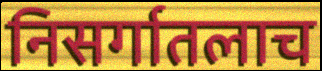
निसर्गातलाच